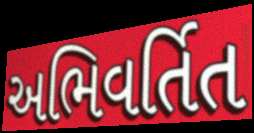
અભિવર્તિત